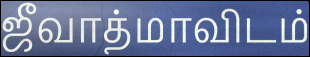
ஜீவாத்மாவிடம்